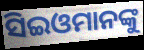
ସିଇଓମାନଙ୍କୁ